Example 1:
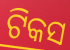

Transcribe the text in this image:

ଟିକସ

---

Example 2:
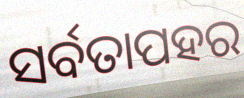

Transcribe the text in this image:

ସର୍ବତାପହର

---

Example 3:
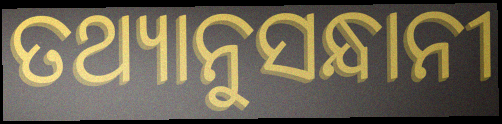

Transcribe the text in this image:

ତଥ୍ୟାନୁସନ୍ଧାନୀ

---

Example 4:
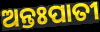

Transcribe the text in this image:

ଅନ୍ତଃପାତୀ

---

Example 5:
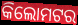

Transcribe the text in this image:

କିଲୋମଟର